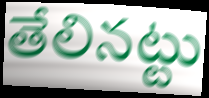
తేలినట్టు